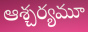
ఆశ్చర్యమూ